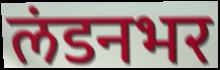
लंडनभर